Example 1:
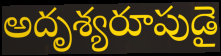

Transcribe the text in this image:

అదృశ్యరూపుడై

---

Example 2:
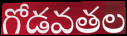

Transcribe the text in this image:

గోడవతల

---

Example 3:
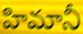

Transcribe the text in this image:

హిమానీ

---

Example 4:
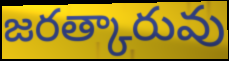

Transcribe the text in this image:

జరత్కారువు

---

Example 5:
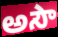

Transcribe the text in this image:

అసౌ